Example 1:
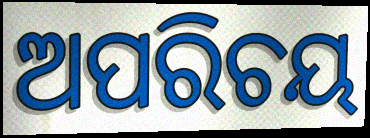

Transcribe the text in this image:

ଅପରିଚୟ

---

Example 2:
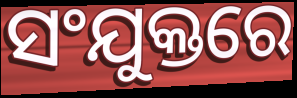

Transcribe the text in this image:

ସଂଯୁକ୍ତରେ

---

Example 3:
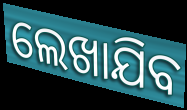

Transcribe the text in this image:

ଲେଖାଯିବ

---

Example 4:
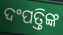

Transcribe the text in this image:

ଦଂପତ୍ତିଙ୍କ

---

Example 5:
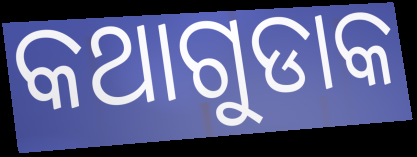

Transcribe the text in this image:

କଥାଗୁଡାକ